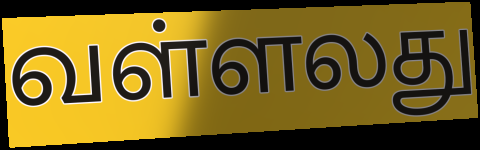
வள்ளலது